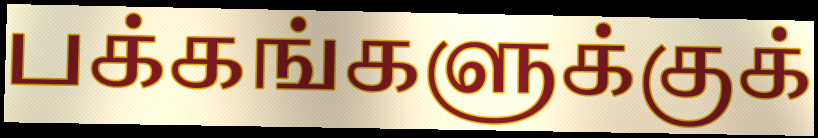
பக்கங்களுக்குக்